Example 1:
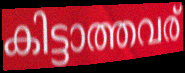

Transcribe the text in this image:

കിട്ടാത്തവര്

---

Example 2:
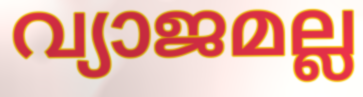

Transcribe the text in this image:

വ്യാജമല്ല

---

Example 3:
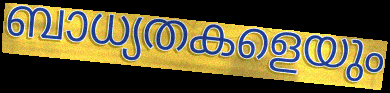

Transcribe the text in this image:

ബാധ്യതകളെയും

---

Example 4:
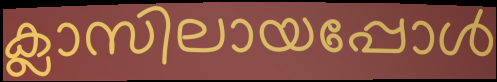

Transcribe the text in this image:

ക്ലാസിലായപ്പോൾ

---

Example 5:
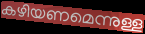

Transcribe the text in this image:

കഴിയണമെന്നുള്ള